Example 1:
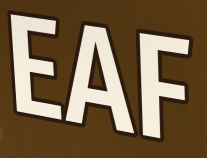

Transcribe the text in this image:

EAF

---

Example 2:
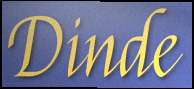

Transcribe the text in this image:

Dinde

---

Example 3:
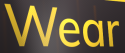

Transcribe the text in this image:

Wear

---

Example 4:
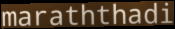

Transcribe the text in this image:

maraththadi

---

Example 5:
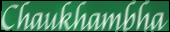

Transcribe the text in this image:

Chaukhambha